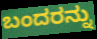
ಬಂದರನ್ನು